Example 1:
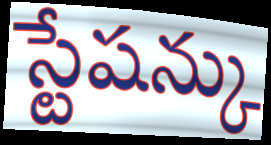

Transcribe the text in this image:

స్టేషన్కు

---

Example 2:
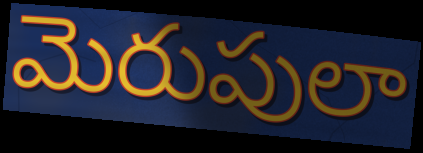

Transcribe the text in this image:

మెరుపులా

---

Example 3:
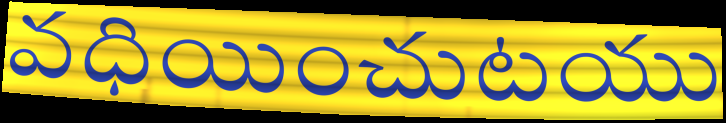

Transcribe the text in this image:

వధియించుటయు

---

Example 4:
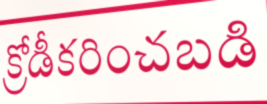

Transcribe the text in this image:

క్రోడీకరించబడి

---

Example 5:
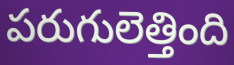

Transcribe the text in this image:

పరుగులెత్తింది